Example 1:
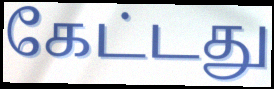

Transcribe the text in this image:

கேட்டது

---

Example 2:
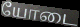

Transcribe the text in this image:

யோடை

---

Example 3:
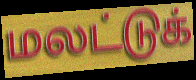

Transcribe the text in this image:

மலட்டுக்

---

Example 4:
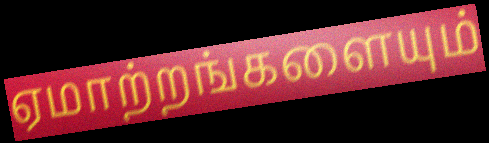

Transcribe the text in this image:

ஏமாற்றங்களையும்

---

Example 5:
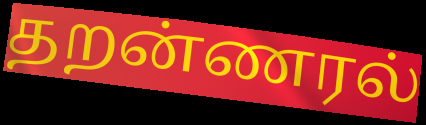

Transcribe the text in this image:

தறன்ணரல்